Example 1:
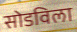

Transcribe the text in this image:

सोडविला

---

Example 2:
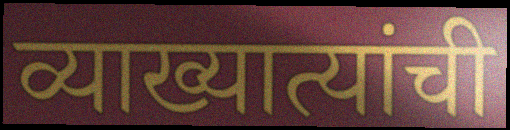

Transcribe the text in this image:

व्याख्यात्यांची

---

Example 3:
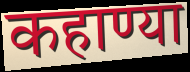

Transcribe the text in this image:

कहाण्या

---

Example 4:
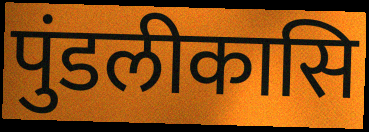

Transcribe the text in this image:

पुंडलीकासि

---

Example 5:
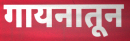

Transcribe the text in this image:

गायनातून